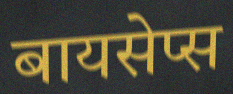
बायसेप्स